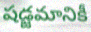
షడ్జమానికీ